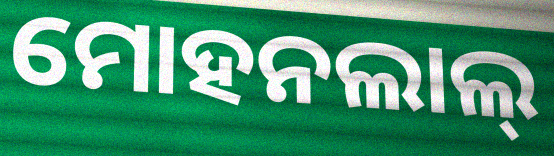
ମୋହନଲାଲ୍